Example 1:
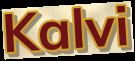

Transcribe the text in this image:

Kalvi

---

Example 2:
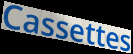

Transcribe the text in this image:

Cassettes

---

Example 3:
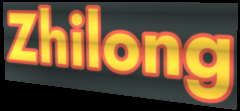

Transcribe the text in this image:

Zhilong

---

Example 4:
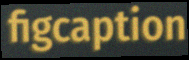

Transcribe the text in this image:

figcaption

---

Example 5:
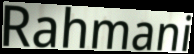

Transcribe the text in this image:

Rahmani